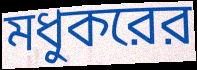
মধুকরের